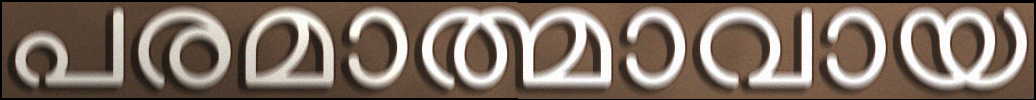
പരമാത്മാവായ